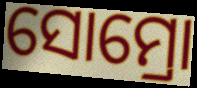
ସୋମ୍ରୋ